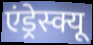
एंड्रेस्क्यू